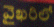
వైఖరిలో